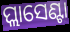
ପ୍ଲାସେଣ୍ଟା